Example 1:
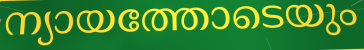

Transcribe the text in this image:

ന്യായത്തോടെയും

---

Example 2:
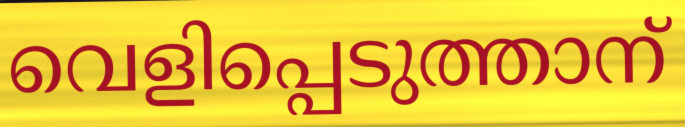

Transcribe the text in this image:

വെളിപ്പെടുത്താന്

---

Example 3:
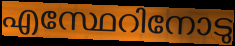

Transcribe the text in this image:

എസ്ഥേറിനോടു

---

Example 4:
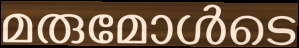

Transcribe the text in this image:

മരുമോൾടെ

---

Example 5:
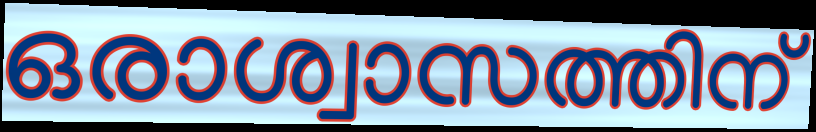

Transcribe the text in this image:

ഒരാശ്വാസത്തിന്